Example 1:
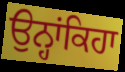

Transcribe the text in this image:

ਉਨ੍ਹਾਂਕਿਹਾ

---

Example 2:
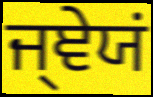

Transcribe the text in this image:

ਜ੍ਞੇਯਂ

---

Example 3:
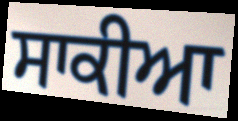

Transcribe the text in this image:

ਸਾਕੀਆ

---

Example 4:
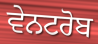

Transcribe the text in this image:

ਵੇਨਟਰੋਬ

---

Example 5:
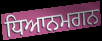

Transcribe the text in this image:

ਧਿਆਨਮਗਨ